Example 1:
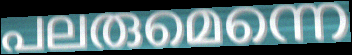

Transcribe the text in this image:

പലരുമെന്നെ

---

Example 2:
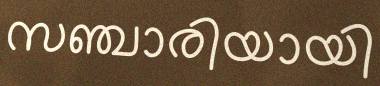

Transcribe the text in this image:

സഞ്ചാരിയായി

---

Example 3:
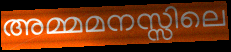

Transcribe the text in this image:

അമ്മമനസ്സിലെ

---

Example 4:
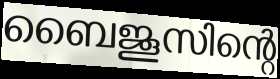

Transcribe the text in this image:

ബൈജൂസിന്റെ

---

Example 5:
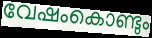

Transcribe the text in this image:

വേഷംകൊണ്ടും